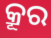
କ୍ରୂର